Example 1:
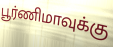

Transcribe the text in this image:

பூர்ணிமாவுக்கு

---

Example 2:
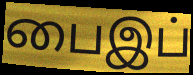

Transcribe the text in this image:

பைஇப்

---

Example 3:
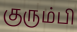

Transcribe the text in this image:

குரும்பி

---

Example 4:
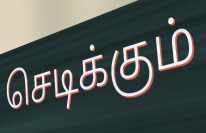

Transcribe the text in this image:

செடிக்கும்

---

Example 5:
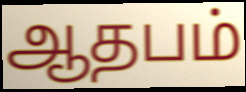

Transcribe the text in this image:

ஆதபம்